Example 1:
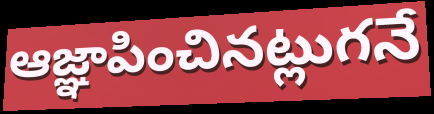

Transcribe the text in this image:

ఆజ్ఞాపించినట్లుగనే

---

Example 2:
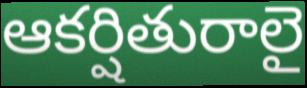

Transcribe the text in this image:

ఆకర్షితురాలై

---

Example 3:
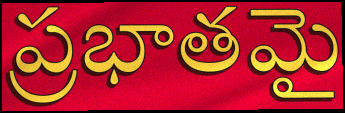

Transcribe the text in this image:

ప్రభాతమై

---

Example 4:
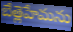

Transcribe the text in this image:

బేత్లెహేమను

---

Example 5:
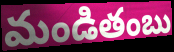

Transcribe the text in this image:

మండితంబు